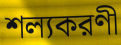
শল্যকরণী